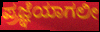
ಪ್ರಜ್ಞೆಯಾಗಲೀ